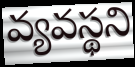
వ్యవస్థని